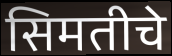
सिमतीचे